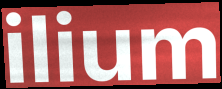
ilium